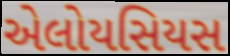
એલોયસિયસ